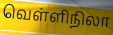
வெள்ளிநிலா